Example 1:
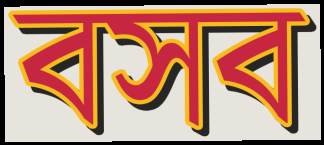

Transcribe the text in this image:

বসব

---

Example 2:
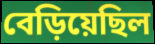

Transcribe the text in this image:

বেড়িয়েছিল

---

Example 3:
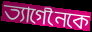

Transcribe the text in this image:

ত্যাগেনৈকে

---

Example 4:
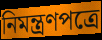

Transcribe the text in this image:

নিমন্ত্রণপত্রে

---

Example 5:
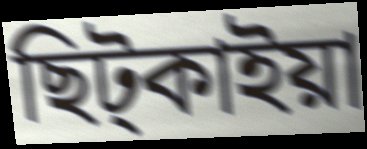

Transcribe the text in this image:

ছিট্কাইয়া